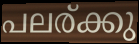
പലര്ക്കു